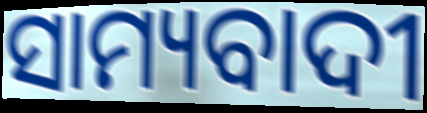
ସାମ୍ୟବାଦୀ